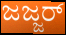
ಜಜ್ಜರ್